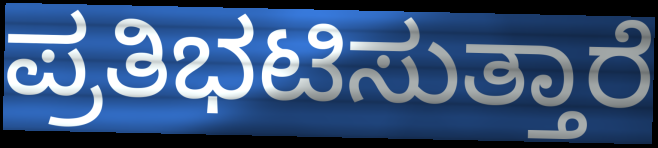
ಪ್ರತಿಭಟಿಸುತ್ತಾರೆ